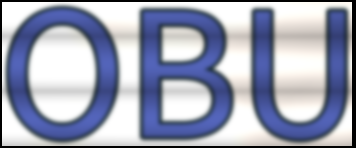
OBU